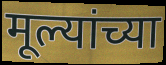
मूल्यांच्या